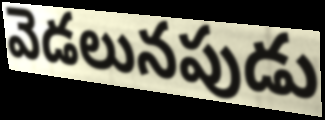
వెడలునపుడు